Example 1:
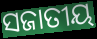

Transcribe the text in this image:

ସଜାତୀୟ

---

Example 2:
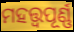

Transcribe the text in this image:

ମହତ୍ତ୍ଵପୂର୍ଣ୍ଣ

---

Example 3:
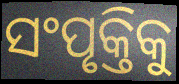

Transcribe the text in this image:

ସଂପୃକ୍ତିକୁ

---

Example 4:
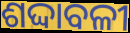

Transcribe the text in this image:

ଶଦ୍ଦାବଳୀ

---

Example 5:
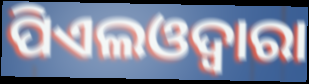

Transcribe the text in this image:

ପିଏଲଓଦ୍ୱାରା